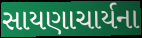
સાયણાચાર્યના